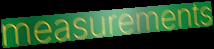
measurements